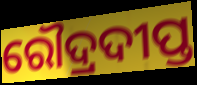
ରୌଦ୍ରଦୀପ୍ତ